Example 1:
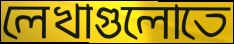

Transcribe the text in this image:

লেখাগুলোতে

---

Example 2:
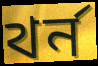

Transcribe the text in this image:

থর্ন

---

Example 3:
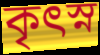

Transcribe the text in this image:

কৃৎস্ন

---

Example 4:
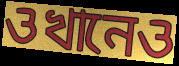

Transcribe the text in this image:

ওখানেও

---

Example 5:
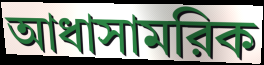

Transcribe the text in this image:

আধাসামরিক